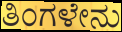
ತಿಂಗಳೇನು